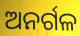
ଅନର୍ଗଳ